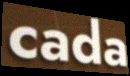
cada